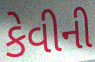
કેવીની